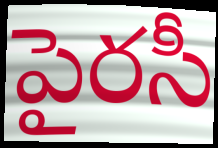
పైరసీ